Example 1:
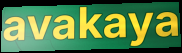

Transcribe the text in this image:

avakaya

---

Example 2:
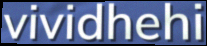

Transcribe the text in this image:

vividhehi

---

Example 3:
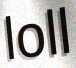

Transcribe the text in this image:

loll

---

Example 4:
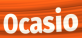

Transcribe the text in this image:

Ocasio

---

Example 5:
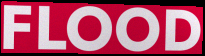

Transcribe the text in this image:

FLOOD